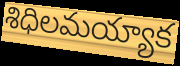
శిధిలమయ్యాక